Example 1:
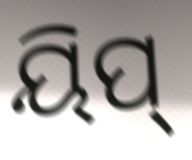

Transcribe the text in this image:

ୟିପ୍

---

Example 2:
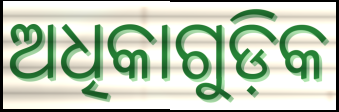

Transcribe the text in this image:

ଅଧିକାଗୁଡ଼ିକ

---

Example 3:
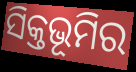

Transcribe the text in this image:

ସିକ୍ତଭୂମିର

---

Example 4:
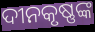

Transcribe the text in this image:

ଦୀନକୃଷ୍ଣଙ୍କ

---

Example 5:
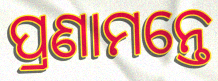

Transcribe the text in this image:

ପ୍ରଣାମନ୍ତେ